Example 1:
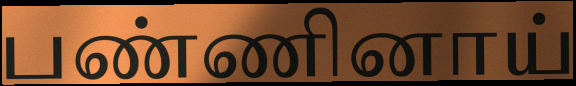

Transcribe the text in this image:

பண்ணினாய்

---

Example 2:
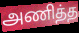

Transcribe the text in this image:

அணித்த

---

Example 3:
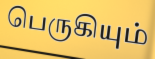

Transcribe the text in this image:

பெருகியும்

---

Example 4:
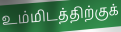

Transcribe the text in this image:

உம்மிடத்திற்குக்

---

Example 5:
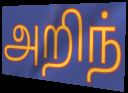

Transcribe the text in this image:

அறிந்